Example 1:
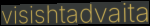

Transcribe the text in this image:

visishtadvaita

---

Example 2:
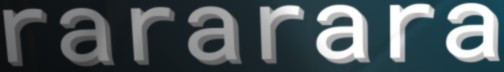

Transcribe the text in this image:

rararara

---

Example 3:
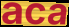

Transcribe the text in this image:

aca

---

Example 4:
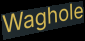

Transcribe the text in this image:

Waghole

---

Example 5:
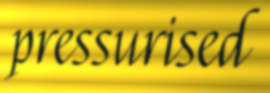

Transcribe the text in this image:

pressurised